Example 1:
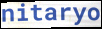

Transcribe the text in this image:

nitaryo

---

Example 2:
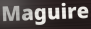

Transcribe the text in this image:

Maguire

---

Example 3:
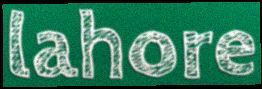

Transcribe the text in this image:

lahore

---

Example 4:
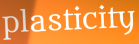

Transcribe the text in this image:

plasticity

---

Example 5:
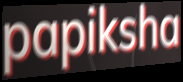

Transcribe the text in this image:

papiksha